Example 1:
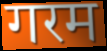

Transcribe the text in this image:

गरम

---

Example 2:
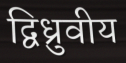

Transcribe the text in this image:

द्विध्रुवीय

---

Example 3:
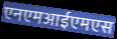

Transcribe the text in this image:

एनएमआईएमएस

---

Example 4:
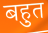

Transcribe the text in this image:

बहुत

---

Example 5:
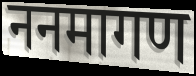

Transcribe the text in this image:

ननमागण